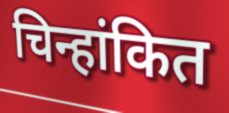
चिन्हांकित